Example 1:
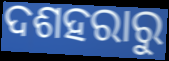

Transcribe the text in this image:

ଦଶହରାରୁ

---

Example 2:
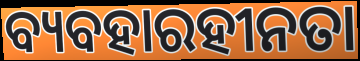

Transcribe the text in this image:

ବ୍ୟବହାରହୀନତା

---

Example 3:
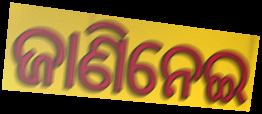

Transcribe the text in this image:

ଜାଣିନେଇ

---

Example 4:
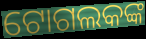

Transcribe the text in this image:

ଟୋଗଲକଙ୍କ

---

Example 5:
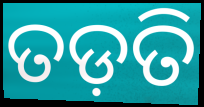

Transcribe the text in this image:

ତଡ଼ତି